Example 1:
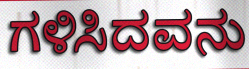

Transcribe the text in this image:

ಗಳಿಸಿದವನು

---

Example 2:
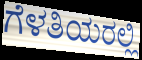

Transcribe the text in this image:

ಗೆಳತಿಯರಲ್ಲಿ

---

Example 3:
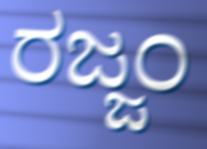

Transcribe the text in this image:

ರಜ್ಜಂ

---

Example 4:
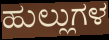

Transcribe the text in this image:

ಹುಲ್ಲುಗಳ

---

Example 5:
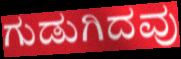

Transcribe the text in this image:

ಗುಡುಗಿದವು